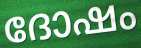
ദോഷം